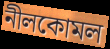
নীলকোমল